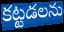
కట్టడలను